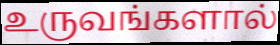
உருவங்களால்